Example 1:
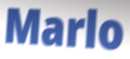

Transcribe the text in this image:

Marlo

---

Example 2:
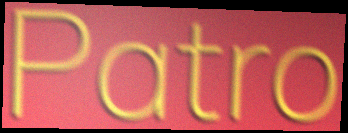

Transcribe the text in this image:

Patro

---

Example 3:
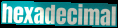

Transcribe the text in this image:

hexadecimal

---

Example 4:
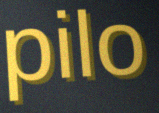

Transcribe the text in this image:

pilo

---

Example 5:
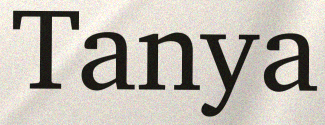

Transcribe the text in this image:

Tanya